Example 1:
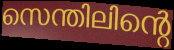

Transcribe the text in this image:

സെന്തിലിന്റെ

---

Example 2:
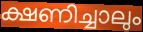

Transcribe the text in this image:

ക്ഷണിച്ചാലും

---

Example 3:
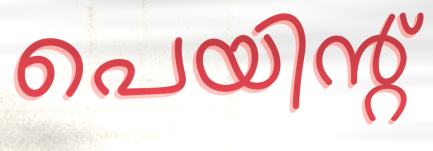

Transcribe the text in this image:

പെയിന്റ്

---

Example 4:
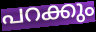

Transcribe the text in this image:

പറക്കും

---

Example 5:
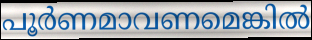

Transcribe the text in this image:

പൂർണമാവണമെങ്കിൽ